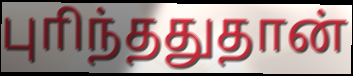
புரிந்ததுதான்